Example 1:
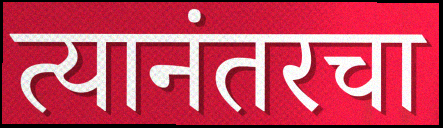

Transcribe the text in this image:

त्यानंतरचा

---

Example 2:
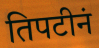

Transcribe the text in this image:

तिपटीनं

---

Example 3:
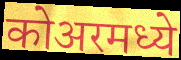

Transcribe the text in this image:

कोअरमध्ये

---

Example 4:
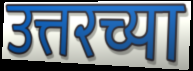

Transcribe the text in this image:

उत्तरच्या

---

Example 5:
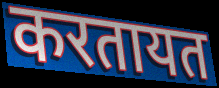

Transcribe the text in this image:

करतायत